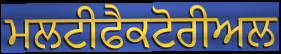
ਮਲਟੀਫੈਕਟੋਰੀਅਲ